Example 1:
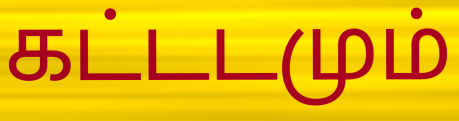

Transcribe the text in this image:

கட்டடமும்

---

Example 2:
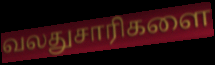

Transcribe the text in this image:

வலதுசாரிகளை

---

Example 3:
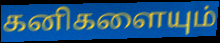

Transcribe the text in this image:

கனிகளையும்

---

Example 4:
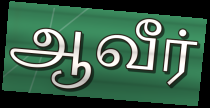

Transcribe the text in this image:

ஆவீர்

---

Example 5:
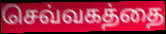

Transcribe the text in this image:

செவ்வகத்தை